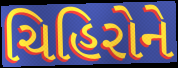
ચિહિરોને